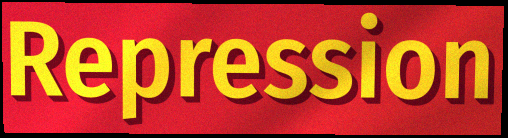
Repression